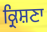
ਕ੍ਰਿਸ਼ਣਾ